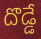
దొడ్డే